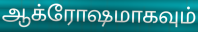
ஆக்ரோஷமாகவும்